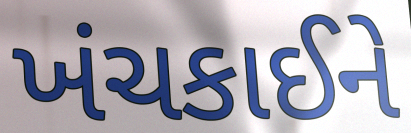
ખંચકાઈને